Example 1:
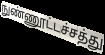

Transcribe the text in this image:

நுண்ணூட்டச்சத்து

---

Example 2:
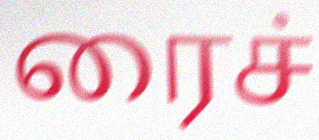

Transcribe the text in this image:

ரைச்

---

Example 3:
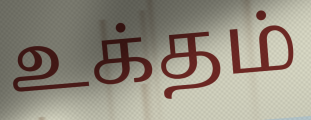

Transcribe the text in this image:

உக்தம்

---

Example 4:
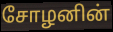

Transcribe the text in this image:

சோழனின்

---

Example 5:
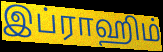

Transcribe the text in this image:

இப்ராஹிம்